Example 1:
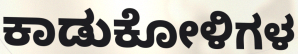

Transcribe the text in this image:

ಕಾಡುಕೋಳಿಗಳ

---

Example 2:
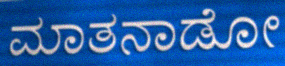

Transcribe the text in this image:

ಮಾತನಾಡೋ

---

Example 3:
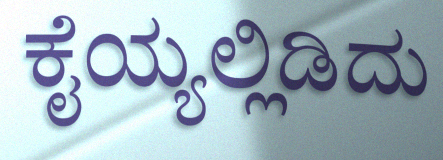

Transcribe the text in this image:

ಕೈಯ್ಯಲ್ಲಿಡಿದು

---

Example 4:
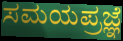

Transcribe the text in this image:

ಸಮಯಪ್ರಜ್ಞೆ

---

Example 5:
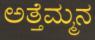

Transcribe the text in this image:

ಅತ್ತೆಮ್ಮನ